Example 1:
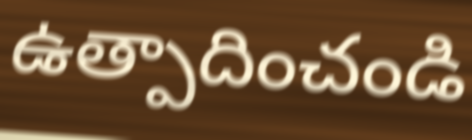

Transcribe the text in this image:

ఉత్పాదించండి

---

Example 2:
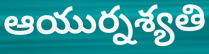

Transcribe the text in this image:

ఆయుర్నశ్యతి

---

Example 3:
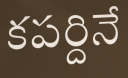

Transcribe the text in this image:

కపర్దినే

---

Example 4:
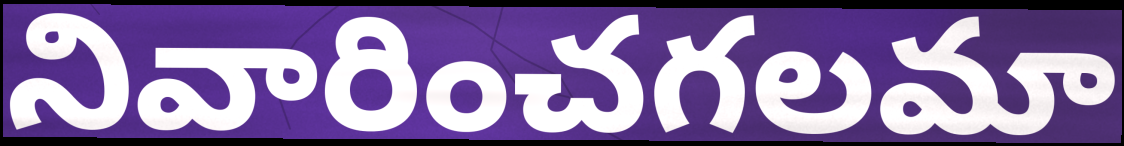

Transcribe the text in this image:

నివారించగలమా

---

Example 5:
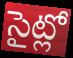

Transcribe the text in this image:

సైట్లో